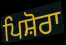
ਪਿਸ਼ੋਰਾ